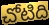
చోటిది